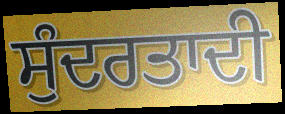
ਸੁੰਦਰਤਾਦੀ